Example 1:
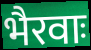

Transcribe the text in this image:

भैरवाः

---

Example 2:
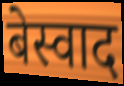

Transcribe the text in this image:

बेस्वाद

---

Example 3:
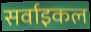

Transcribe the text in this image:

सर्वाइकल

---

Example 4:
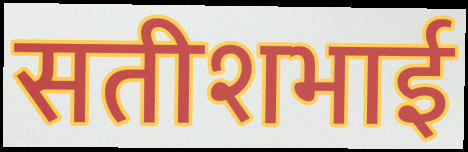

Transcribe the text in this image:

सतीशभाई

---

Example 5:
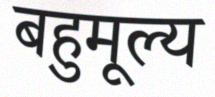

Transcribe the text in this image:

बहुमूल्य